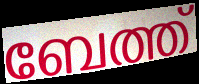
ബേത്ത്